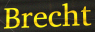
Brecht